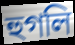
হুগলি